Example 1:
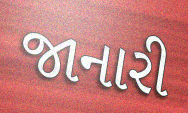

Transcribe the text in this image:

જાનારી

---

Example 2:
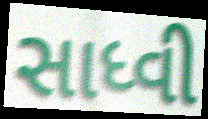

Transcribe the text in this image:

સાધ્વી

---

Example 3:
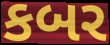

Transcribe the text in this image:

કબર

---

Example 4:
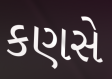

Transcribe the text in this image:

કણસે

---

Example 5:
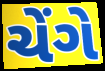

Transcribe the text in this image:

ચેંગે